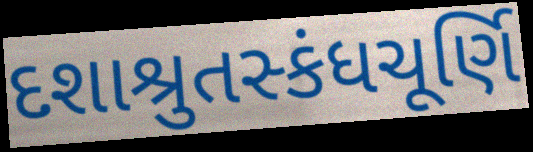
દશાશ્રુતસ્કંધચૂર્ણિ